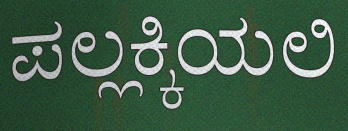
ಪಲ್ಲಕ್ಕಿಯಲಿ